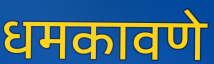
धमकावणे